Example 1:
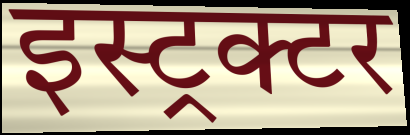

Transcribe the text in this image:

इस्ट्रक्टर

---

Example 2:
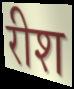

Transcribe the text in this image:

रीश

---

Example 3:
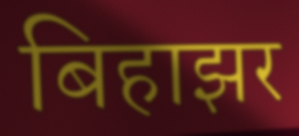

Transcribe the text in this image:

बिहाझर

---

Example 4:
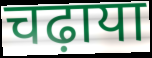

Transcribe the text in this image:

चढ़ाया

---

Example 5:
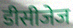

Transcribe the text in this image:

डीसीजेज